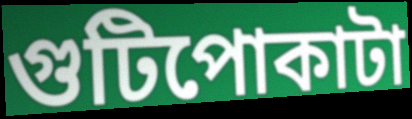
গুটিপোকাটা